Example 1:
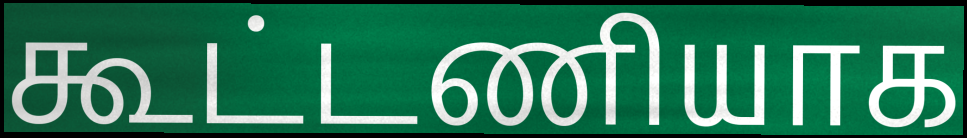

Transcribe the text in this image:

கூட்டணியாக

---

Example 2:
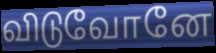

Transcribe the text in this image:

விடுவோனே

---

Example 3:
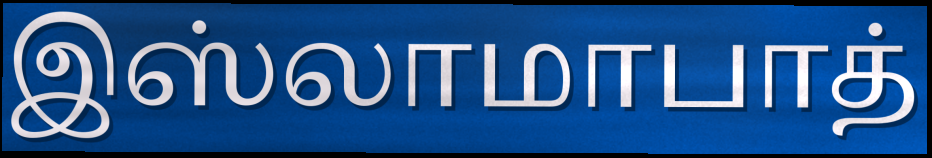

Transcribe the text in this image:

இஸ்லாமாபாத்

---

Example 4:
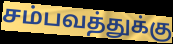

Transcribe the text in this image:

சம்பவத்துக்கு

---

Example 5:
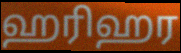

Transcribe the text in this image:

ஹரிஹர